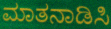
ಮಾತನಾಡಿಸಿ